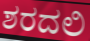
ಶರದಲಿ